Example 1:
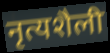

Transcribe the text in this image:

नृत्यशैली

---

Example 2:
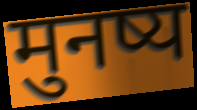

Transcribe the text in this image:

मुनष्य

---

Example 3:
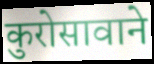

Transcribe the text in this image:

कुरोसावाने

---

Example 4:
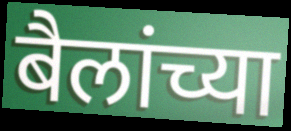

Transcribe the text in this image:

बैलांच्या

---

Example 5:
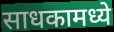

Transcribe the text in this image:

साधकामध्ये